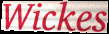
Wickes